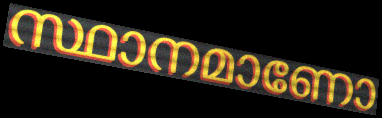
സ്ഥാനമാണോ